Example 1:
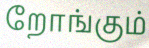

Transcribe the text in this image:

றோங்கும்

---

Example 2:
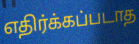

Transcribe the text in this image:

எதிர்க்கப்படாத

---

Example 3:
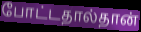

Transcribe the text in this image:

போட்டதால்தான்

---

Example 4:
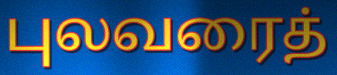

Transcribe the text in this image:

புலவரைத்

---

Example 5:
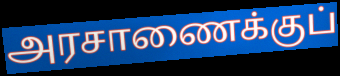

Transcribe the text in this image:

அரசாணைக்குப்